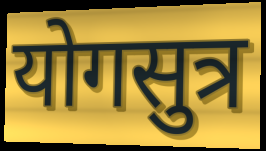
योगसुत्र